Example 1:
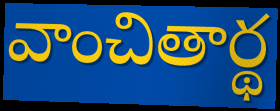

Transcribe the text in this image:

వాంచితార్థ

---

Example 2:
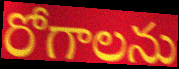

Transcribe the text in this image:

రోగాలను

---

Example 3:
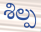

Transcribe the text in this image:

శిల్ప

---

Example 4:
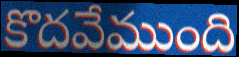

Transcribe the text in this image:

కొదవేముంది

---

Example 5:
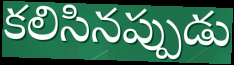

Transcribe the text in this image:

కలిసినప్పుడు